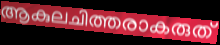
ആകുലചിത്തരാകരുത്